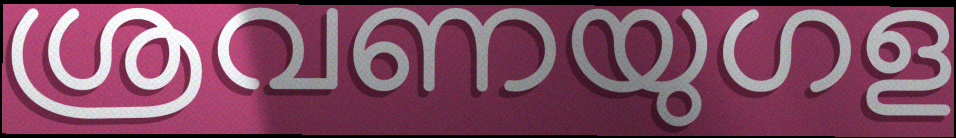
ശ്രവണയുഗള